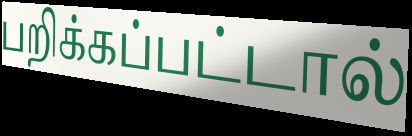
பறிக்கப்பட்டால்